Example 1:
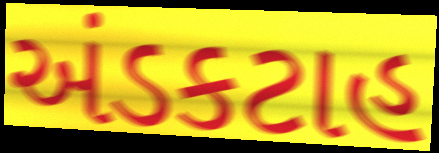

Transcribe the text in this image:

અંડકટાહ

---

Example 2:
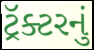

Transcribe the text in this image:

ટ્રૅક્ટરનું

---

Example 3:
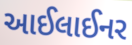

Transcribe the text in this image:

આઈલાઈનર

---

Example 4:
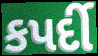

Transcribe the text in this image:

કપર્દી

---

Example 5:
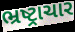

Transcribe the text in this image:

ભ્રષ્ટ્રાચાર